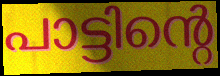
പാട്ടിന്റെ